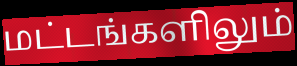
மட்டங்களிலும்